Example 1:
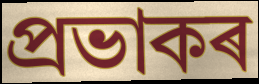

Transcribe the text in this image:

প্ৰভাকৰ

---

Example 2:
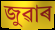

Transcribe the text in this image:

জুৱাৰ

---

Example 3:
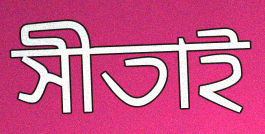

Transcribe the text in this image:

সীতাই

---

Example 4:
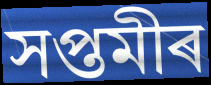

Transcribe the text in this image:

সপ্তমীৰ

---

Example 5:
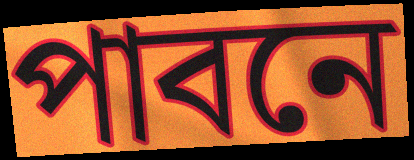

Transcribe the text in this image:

পাবনে